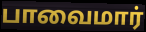
பாவைமார்